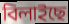
বিলাইছে